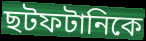
ছটফটানিকে